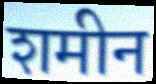
शमीन